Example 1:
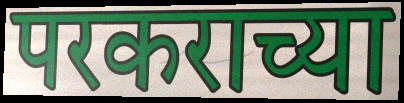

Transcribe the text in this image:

परकराच्या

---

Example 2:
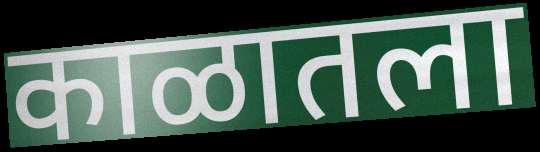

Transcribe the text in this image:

काळातला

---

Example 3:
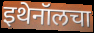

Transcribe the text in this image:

इथेनॉलचा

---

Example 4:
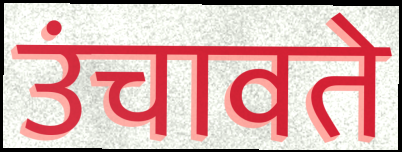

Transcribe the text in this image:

उंचावते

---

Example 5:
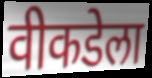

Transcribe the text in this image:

वीकडेला